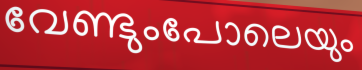
വേണ്ടുംപോലെയും